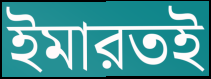
ইমারতই